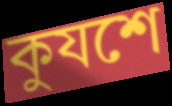
কুযশে